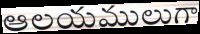
ఆలయములుగా